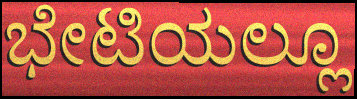
ಭೇಟಿಯಲ್ಲೂ